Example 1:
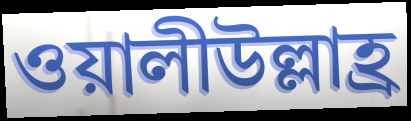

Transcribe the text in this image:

ওয়ালীউল্লাহ্র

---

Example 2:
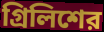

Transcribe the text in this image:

গ্রিলিশের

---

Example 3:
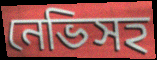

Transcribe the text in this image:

নেভিসহ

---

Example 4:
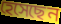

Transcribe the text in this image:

হেসেছেন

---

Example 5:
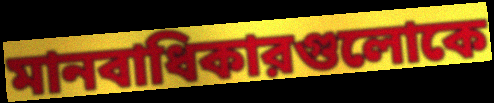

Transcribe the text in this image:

মানবাধিকারগুলোকে